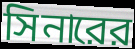
সিনারের